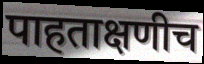
पाहताक्षणीच